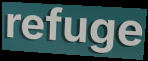
refuge